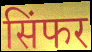
सिंफर